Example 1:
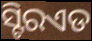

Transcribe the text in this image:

ସ୍ଟିରଏଡ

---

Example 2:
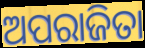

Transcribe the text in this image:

ଅପରାଜିତା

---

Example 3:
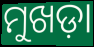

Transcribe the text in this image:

ମୁଖଡ଼ା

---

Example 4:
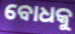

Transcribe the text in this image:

ବୋଧକୁ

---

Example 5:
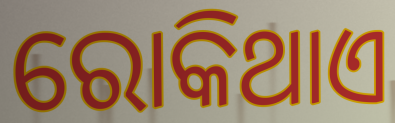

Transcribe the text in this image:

ରୋକିଥାଏ